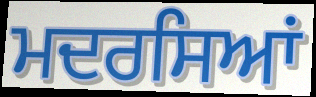
ਮਦਰਸਿਆਂ